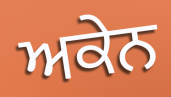
ਅਕੇਨ